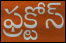
ఫ్రక్టోస్